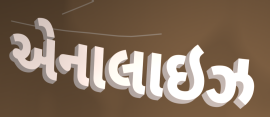
એનાલાઇઝ